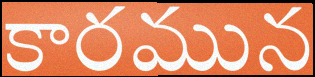
కారమున